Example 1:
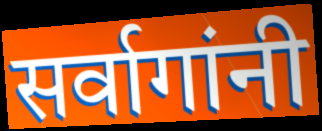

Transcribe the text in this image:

सर्वागांनी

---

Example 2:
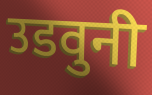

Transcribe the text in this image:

उडवुनी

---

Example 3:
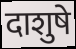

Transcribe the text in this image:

दाशुषे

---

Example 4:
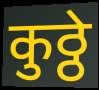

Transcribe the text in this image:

कुठ्ठे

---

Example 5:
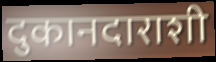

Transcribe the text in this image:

दुकानदाराशी